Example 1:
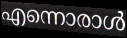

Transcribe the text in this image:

എന്നൊരാൾ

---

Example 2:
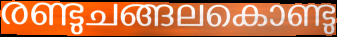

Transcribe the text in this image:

രണ്ടുചങ്ങലകൊണ്ടു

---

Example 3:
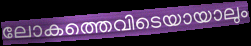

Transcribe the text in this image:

ലോകത്തെവിടെയായാലും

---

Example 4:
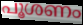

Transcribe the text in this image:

പൂശണം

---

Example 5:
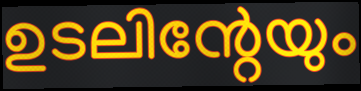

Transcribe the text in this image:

ഉടലിന്റേയും